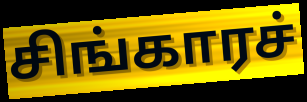
சிங்காரச்